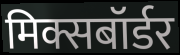
मिक्सबॉर्डर